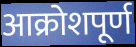
आक्रोशपूर्ण